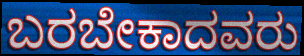
ಬರಬೇಕಾದವರು